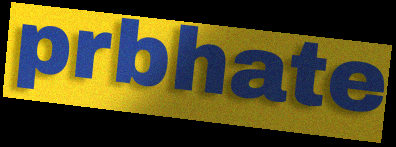
prbhate